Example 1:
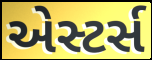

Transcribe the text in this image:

એસ્ટર્સ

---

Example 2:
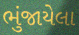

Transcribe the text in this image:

ભુંજાયેલા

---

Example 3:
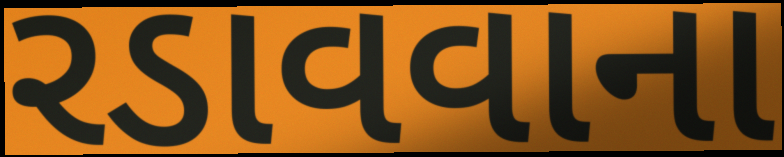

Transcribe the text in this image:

રડાવવાના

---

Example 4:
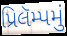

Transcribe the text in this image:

પ્રિલૅમ્પમું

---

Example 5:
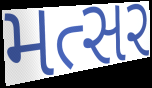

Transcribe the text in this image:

મત્સર